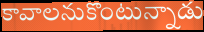
కావాలనుకొంటున్నాడు